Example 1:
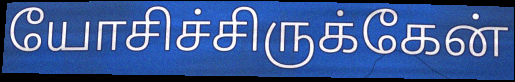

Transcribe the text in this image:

யோசிச்சிருக்கேன்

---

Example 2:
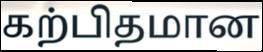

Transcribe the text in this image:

கற்பிதமான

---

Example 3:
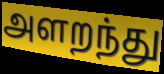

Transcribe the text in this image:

அளறந்து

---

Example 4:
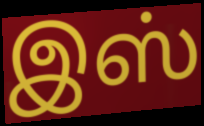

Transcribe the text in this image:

இஸ்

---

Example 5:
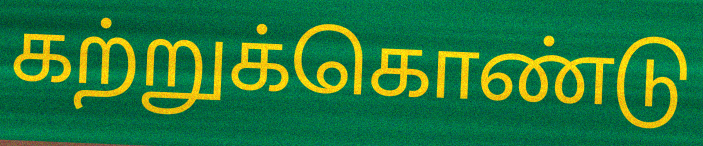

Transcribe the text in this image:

கற்றுக்கொண்டு